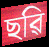
ছৱি